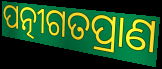
ପତ୍ନୀଗତପ୍ରାଣ